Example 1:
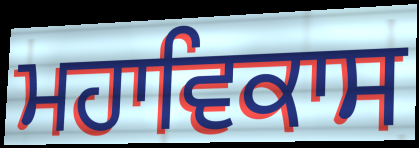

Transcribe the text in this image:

ਮਹਾਵਿਕਾਸ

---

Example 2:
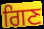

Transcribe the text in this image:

ਗਿਣ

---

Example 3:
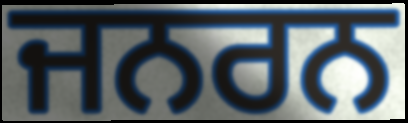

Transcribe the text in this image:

ਜਨਰਨ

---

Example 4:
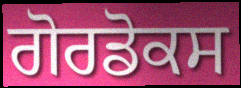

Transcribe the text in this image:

ਗੋਰਡੋਕਸ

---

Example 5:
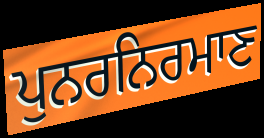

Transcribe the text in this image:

ਪੁਨਰਨਿਰਮਾਣ